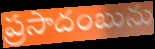
ప్రసాదంబును